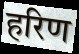
हरिण